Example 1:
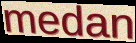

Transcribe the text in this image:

medan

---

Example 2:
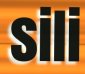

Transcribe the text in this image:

sili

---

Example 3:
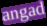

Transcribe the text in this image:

angad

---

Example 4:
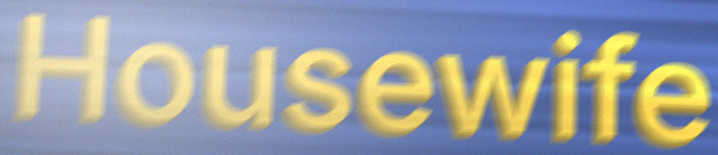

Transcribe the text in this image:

Housewife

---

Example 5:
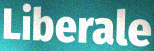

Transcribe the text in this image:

Liberale